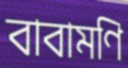
বাবামণি